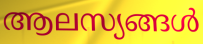
ആലസ്യങ്ങൾ